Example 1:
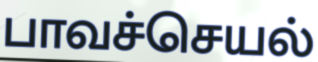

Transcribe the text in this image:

பாவச்செயல்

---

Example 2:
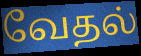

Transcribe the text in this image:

வேதல்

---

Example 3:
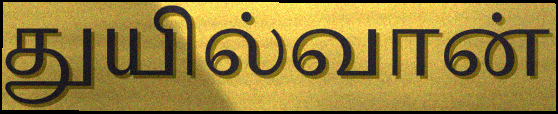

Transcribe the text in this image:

துயில்வான்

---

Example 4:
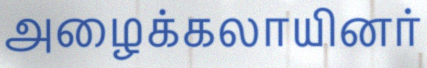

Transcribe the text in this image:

அழைக்கலாயினர்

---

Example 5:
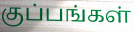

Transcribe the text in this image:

குப்பங்கள்